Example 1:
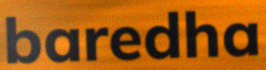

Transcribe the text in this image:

baredha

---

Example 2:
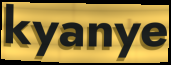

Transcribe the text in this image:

kyanye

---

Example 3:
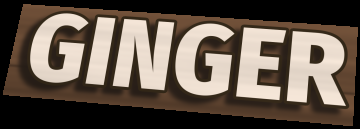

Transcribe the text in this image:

GINGER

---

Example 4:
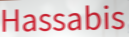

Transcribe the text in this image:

Hassabis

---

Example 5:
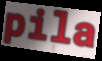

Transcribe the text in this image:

pila